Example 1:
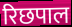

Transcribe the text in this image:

रिछपाल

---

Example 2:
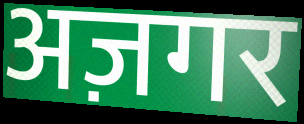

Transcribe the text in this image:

अज़गर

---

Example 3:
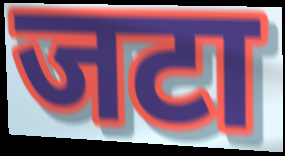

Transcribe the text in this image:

जटा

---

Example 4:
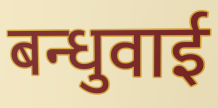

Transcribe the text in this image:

बन्धुवाई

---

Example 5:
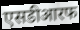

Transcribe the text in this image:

एसडीआरफ